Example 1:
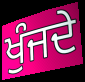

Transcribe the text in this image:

ਖੁੰਜਦੇ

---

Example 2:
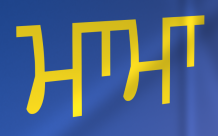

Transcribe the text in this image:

ਮਾਮਾ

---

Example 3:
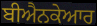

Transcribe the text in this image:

ਬੀਐਨਕੇਆਰ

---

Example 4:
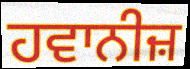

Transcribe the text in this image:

ਹਵਾਨੀਜ਼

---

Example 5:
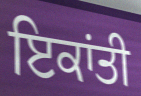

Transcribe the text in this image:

ਇਕਾਂਤੀ